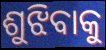
ଶୁଝିବାକୁ